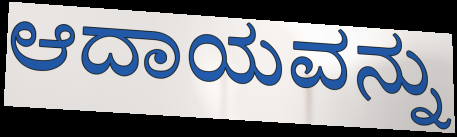
ಆದಾಯವನ್ನು